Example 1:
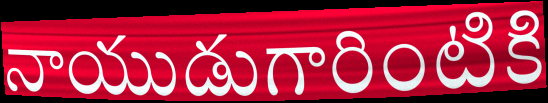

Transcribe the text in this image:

నాయుడుగారింటికి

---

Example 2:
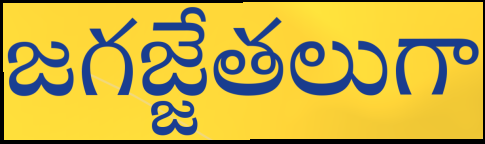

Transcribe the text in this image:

జగజ్జేతలుగా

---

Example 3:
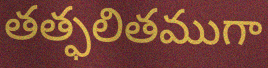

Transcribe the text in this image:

తత్ఫలితముగా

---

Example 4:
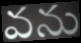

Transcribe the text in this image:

వను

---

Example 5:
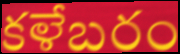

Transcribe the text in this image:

కళేబరం